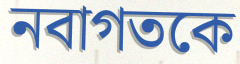
নবাগতকে